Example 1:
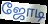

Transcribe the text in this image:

ஜோடி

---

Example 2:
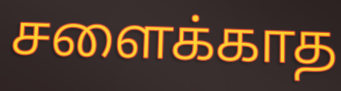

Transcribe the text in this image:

சளைக்காத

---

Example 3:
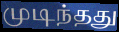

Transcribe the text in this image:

முடிந்தது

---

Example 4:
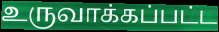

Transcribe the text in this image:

உருவாக்கப்பட்ட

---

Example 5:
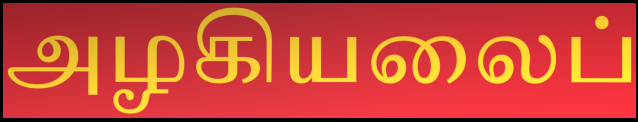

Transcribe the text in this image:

அழகியலைப்